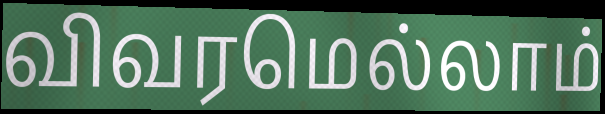
விவரமெல்லாம்